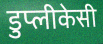
डुप्लीकेसी